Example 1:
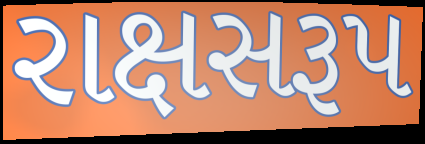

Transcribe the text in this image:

રાક્ષસરૂપ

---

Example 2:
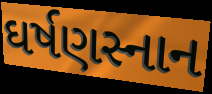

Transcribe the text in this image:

ઘર્ષણસ્નાન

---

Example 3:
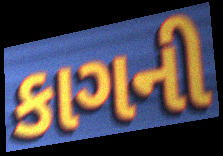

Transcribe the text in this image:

કાગની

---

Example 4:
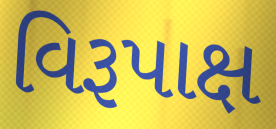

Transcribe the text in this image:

વિરૂપાક્ષ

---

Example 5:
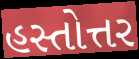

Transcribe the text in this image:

હસ્તોત્તર